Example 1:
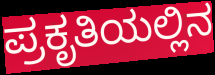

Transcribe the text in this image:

ಪ್ರಕೃತಿಯಲ್ಲಿನ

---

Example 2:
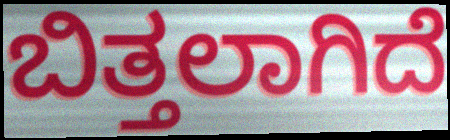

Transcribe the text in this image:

ಬಿತ್ತಲಾಗಿದೆ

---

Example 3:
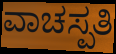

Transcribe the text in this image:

ವಾಚಸ್ಪತಿ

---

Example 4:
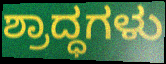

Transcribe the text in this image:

ಶ್ರಾದ್ಧಗಳು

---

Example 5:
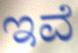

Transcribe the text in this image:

ಇವೆ